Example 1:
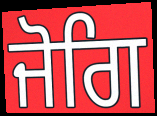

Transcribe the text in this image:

ਜੋਗਿ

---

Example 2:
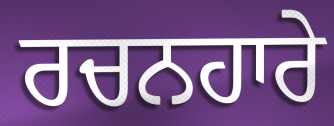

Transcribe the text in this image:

ਰਚਨਹਾਰੇ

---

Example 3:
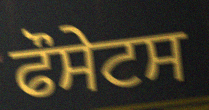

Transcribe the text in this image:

ਫੌਸੇਟਸ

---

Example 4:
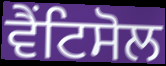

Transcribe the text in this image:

ਵੈਂਟਿਸੋਲ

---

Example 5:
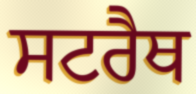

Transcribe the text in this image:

ਸਟਰੈਥ